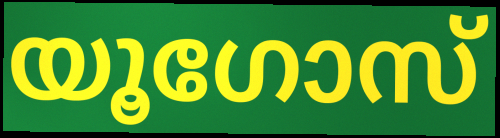
യൂഗോസ്